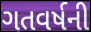
ગતવર્ષની